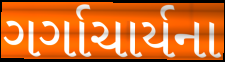
ગર્ગાચાર્યના